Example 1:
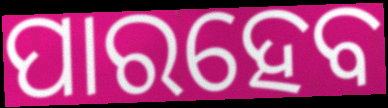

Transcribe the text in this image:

ପାରହେବ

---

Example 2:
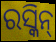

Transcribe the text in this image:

ରସ୍କିନ୍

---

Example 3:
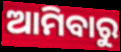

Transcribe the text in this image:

ଆମିବାରୁ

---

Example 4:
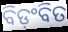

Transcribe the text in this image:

ବିଡ଼ଂବିତ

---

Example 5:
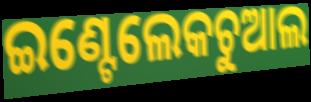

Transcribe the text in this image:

ଇଣ୍ଟେଲେକଚୁଆଲ